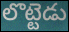
లొట్టెడు